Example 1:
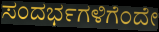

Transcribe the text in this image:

ಸಂದರ್ಭಗಳಿಗೆಂದೇ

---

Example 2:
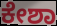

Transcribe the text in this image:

ಕೇಶಾ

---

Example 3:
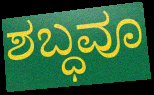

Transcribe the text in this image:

ಶಬ್ಧವೂ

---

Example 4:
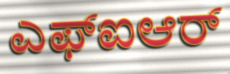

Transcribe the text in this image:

ಎಫ್ಐಆರ್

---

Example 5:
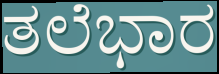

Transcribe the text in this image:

ತಲೆಭಾರ